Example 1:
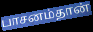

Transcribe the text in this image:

பாசனம்தான்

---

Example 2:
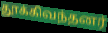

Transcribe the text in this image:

தூக்கிவந்தனர்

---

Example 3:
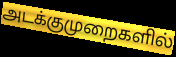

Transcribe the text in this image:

அடக்குமுறைகளில்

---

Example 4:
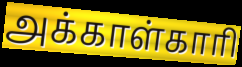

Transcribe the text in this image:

அக்காள்காரி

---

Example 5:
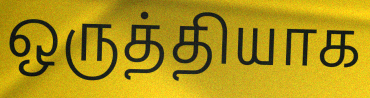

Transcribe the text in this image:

ஒருத்தியாக